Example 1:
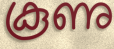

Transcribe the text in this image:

കൂണു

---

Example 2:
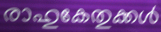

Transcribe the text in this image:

രാഹുകേതുക്കൾ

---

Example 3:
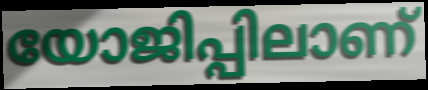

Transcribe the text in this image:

യോജിപ്പിലാണ്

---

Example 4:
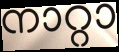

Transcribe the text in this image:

നാറ്റാ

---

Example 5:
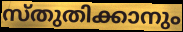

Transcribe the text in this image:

സ്തുതിക്കാനും